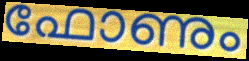
ഫോണും